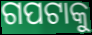
ଗପଟାକୁ